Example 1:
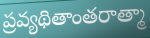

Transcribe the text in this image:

ప్రవ్యథితాంతరాత్మా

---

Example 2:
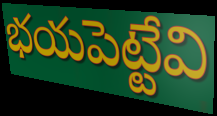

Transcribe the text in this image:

భయపెట్టేవి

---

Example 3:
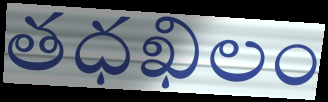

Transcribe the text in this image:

తధఖిలం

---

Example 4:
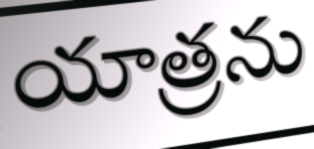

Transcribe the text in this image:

యాత్రను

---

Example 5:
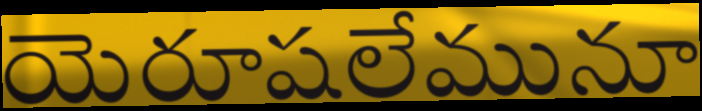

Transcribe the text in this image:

యెరూషలేమునూ